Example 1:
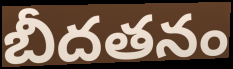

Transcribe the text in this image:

బీదతనం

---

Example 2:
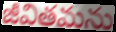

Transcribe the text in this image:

జీవితమను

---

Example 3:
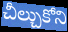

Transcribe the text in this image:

చీల్చుకోని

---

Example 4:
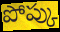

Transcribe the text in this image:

పోప్కు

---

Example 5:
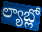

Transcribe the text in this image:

ల్యాబ్లో